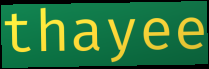
thayee